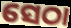
ସେଠା